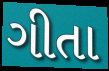
ગીતા